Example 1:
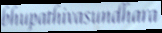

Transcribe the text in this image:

bhupathivasundhara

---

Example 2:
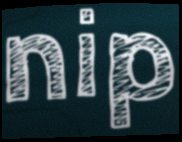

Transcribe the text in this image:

nip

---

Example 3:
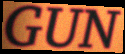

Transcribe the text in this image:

GUN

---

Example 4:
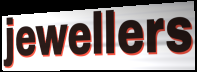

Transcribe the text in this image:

jewellers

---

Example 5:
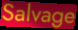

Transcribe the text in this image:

Salvage